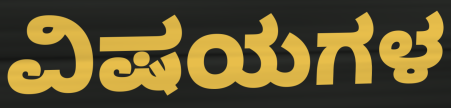
ವಿಷಯಗಳ